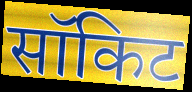
सॉकिट